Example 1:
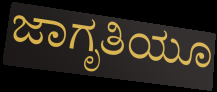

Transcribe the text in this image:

ಜಾಗೃತಿಯೂ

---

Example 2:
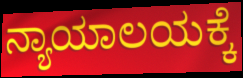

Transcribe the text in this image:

ನ್ಯಾಯಾಲಯಕ್ಕೆ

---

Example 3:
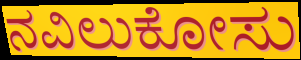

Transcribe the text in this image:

ನವಿಲುಕೋಸು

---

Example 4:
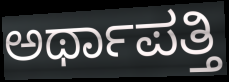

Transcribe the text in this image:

ಅರ್ಥಾಪತ್ತಿ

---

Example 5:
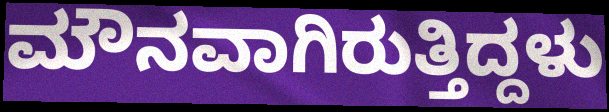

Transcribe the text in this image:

ಮೌನವಾಗಿರುತ್ತಿದ್ದಳು